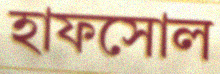
হাফসোল